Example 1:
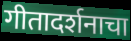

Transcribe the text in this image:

गीतादर्शनाचा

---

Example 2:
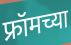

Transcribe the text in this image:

फ्रॉमच्या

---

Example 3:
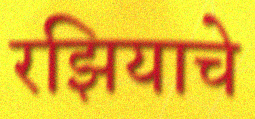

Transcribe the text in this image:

रझियाचे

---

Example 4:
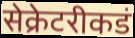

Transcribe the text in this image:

सेक्रेटरीकडं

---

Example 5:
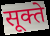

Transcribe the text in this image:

सूक्ते